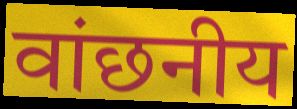
वांछनीय